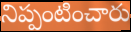
నిప్పంటించారు